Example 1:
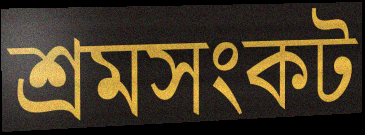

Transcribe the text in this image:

শ্রমসংকট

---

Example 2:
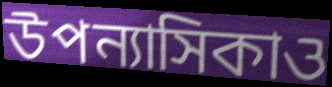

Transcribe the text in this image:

উপন্যাসিকাও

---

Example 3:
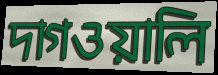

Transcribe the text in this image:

দাগওয়ালি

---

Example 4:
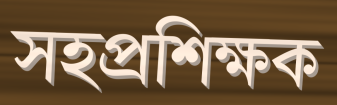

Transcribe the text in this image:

সহপ্রশিক্ষক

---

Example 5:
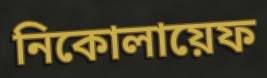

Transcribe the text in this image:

নিকোলায়েফ